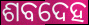
ଶବଦେହ